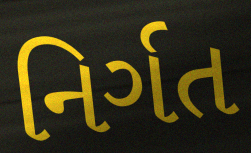
નિર્ગત